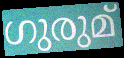
ഗുരുമ്